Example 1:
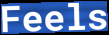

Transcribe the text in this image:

Feels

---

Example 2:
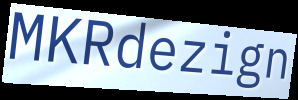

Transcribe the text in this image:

MKRdezign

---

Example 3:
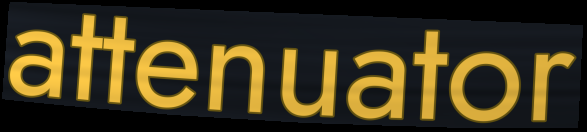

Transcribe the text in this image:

attenuator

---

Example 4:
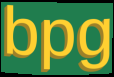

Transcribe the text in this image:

bpg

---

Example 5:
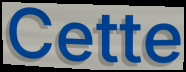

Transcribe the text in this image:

Cette